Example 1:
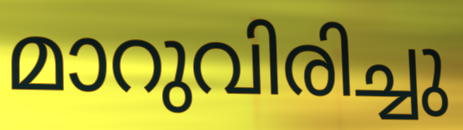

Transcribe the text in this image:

മാറുവിരിച്ചു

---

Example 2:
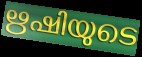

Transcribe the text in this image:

ഋഷിയുടെ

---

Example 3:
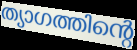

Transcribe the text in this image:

ത്യാഗത്തിന്റെ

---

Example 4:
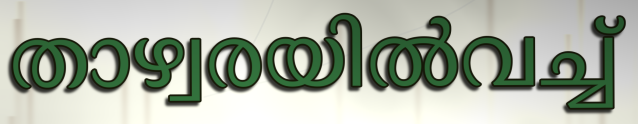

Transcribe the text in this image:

താഴ്വരയിൽവച്ച്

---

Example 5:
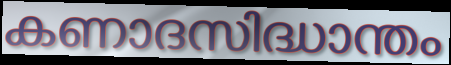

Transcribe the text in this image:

കണാദസിദ്ധാന്തം